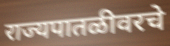
राज्यपातळीवरचे